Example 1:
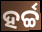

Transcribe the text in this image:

ହର୍ଚ୍ଚ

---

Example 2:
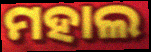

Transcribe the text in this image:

ମହାଲ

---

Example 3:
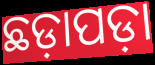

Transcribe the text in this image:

ଛଡ଼ାପଡ଼ା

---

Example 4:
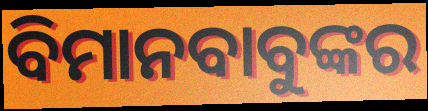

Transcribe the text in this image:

ବିମାନବାବୁଙ୍କର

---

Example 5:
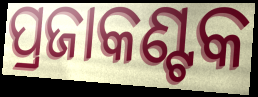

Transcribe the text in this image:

ପ୍ରଜାକଣ୍ଟକ